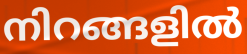
നിറങ്ങളിൽ